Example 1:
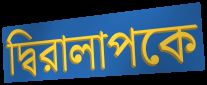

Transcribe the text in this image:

দ্বিরালাপকে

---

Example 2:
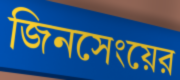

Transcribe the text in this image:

জিনসেংয়ের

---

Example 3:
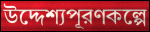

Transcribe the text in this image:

উদ্দেশ্যপূরণকল্পে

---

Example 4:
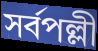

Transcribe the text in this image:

সর্বপল্লী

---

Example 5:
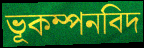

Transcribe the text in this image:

ভূকম্পনবিদ